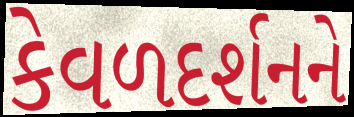
કેવળદર્શનને